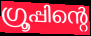
ഗ്രൂപ്പിന്റെ